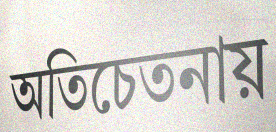
অতিচেতনায়